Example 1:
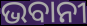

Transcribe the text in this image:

ଭବାନୀ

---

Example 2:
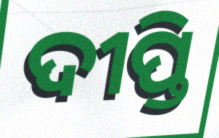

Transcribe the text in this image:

ଦୀପ୍ତି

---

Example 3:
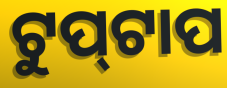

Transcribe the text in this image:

ଟୁପ୍‌ଟାପ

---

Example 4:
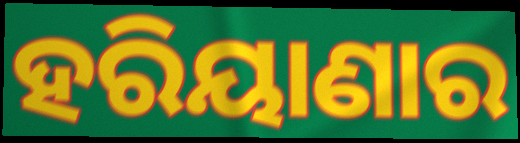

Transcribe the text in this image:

ହରିୟାଣାର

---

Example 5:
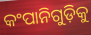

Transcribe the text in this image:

କଂପାନିଗୁଡ଼ିକୁ